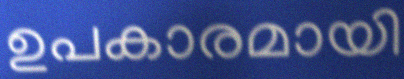
ഉപകാരമായി